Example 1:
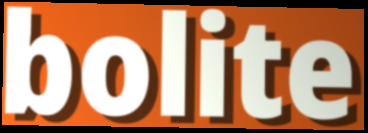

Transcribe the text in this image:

bolite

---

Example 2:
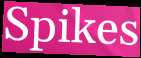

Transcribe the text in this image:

Spikes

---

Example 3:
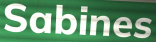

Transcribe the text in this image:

Sabines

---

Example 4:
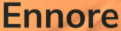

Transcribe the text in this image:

Ennore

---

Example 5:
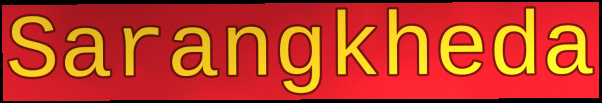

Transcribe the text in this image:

Sarangkheda